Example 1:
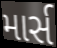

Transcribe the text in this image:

માર્સ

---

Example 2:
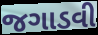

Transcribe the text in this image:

જગાડવી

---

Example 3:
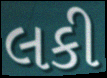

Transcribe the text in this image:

લકી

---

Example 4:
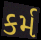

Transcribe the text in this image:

કર્મ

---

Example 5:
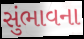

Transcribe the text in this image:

સુંભાવના